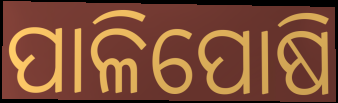
ପାଳିପୋଷି